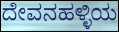
ದೇವನಹಳ್ಳಿಯ